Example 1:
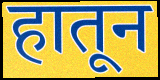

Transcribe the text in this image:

हातून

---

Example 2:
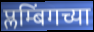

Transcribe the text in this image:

प्लम्बिंगच्या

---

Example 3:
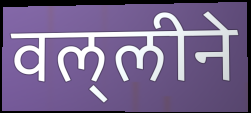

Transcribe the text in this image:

वल्लीने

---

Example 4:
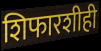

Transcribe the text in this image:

शिफारशीही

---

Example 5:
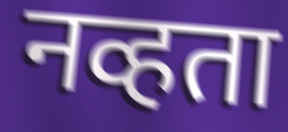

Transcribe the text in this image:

नव्हता